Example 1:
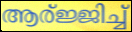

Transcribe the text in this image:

ആര്ജ്ജിച്ച്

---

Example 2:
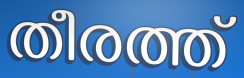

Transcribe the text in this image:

തീരത്ത്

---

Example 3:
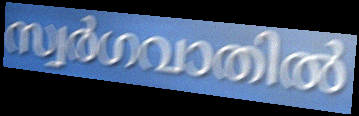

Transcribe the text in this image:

സ്വർഗവാതിൽ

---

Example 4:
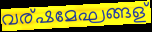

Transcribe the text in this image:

വര്ഷമേഘങ്ങള്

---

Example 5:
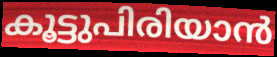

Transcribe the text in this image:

കൂട്ടുപിരിയാൻ